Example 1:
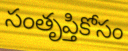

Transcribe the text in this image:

సంతృప్తికోసం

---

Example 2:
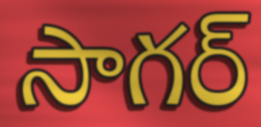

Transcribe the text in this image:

సాగర్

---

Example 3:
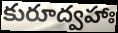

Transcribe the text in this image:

కురూద్వహాః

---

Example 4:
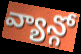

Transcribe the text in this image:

వ్యాన్గో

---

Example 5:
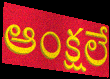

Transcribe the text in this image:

ఆంక్షలే